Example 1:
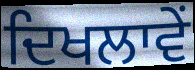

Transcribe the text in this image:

ਦਿਖਲਾਵੇਂ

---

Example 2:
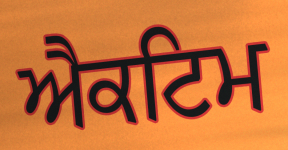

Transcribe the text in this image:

ਐਕਟਿਮ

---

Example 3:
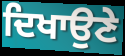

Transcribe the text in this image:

ਦਿਖਾਉਣੇ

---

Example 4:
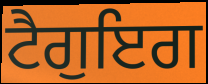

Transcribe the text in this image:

ਟੈਗੁਇਗ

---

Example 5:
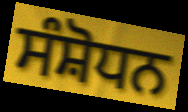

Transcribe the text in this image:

ਸੰਸ਼ੋਧਨ